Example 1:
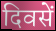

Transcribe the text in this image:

दिवसें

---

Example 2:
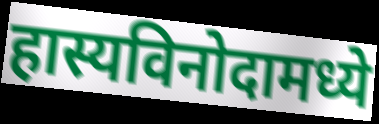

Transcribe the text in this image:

हास्यविनोदामध्ये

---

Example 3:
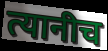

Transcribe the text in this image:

त्यानीच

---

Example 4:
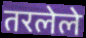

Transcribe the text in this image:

तरलेले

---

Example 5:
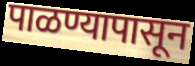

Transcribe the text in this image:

पाळण्यापासून